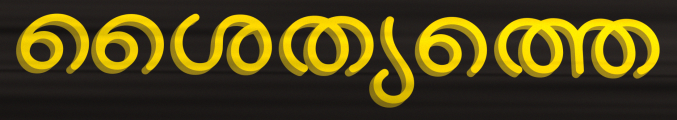
ശൈത്യത്തെ